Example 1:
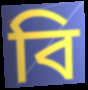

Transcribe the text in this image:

বি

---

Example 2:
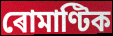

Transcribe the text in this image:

ৰোমাণ্টিক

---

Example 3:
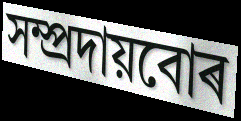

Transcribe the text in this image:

সম্প্ৰদায়বোৰ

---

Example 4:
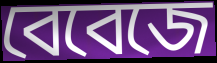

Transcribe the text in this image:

বেবেজে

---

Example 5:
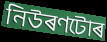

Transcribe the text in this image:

নিউৰণটোৰ